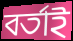
বৰ্তাই